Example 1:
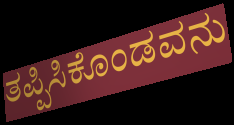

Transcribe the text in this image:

ತಪ್ಪಿಸಿಕೊಂಡವನು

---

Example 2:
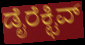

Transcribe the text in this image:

ಡೈರೆಕ್ಟಿವ್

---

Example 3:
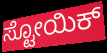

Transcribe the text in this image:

ಸ್ಟೋಯಿಕ್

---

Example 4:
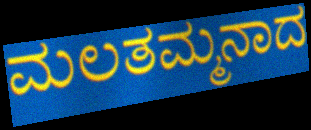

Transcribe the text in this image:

ಮಲತಮ್ಮನಾದ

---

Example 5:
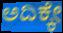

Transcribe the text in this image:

ಅದಿಕ್ಕೇ